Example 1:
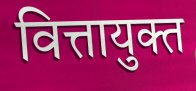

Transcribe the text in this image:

वित्तायुक्त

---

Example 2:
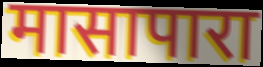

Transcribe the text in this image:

मासापारा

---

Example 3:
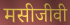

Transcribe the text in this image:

मसीजीवी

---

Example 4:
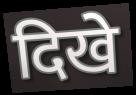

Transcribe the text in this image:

दिखे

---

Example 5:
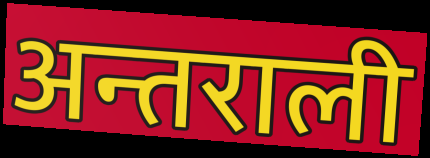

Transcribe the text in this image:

अन्तराली